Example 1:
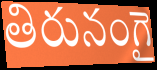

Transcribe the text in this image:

తిరునంగై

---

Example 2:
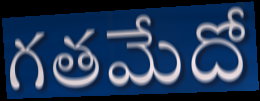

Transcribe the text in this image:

గతమేదో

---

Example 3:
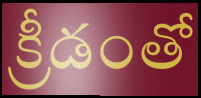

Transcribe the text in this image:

క్రీడంతో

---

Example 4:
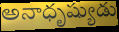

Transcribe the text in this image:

అనాధృష్యుడు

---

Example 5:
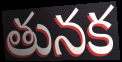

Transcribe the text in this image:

తునక